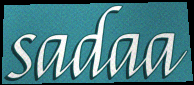
sadaa